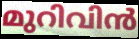
മുറിവിൻ